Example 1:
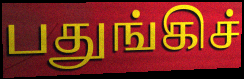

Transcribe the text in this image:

பதுங்கிச்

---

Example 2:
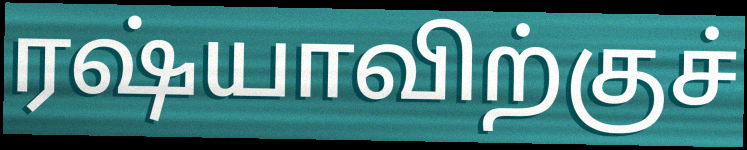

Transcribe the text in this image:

ரஷ்யாவிற்குச்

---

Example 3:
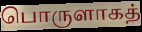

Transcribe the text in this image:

பொருளாகத்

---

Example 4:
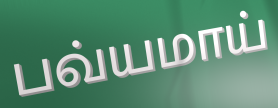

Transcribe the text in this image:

பவ்யமாய்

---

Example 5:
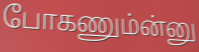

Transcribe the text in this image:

போகணும்ன்னு